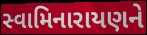
સ્વામિનારાયણને